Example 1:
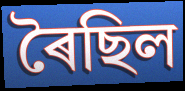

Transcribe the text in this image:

ৰৈছিল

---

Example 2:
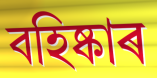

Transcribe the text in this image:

বহিষ্কাৰ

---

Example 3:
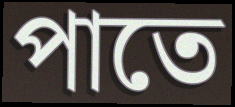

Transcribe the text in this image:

পাতে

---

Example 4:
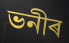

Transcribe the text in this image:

ভনীৰ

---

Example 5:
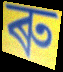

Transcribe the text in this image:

ৰু